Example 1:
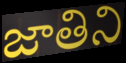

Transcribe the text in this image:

జాతిని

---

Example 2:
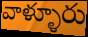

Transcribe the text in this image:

వాళ్ళూరు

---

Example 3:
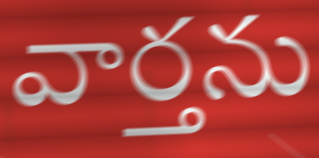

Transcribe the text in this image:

వార్తను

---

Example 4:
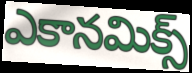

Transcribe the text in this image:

ఎకానమిక్స్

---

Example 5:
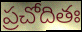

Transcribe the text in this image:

ప్రచోదితః